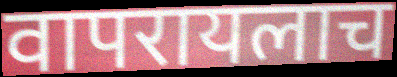
वापरायलाच